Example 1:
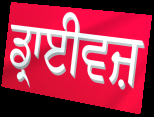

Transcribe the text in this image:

ਡ੍ਰਾਈਵਜ਼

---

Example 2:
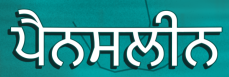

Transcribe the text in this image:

ਪੈਨਸਲੀਨ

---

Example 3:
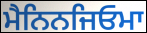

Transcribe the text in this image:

ਮੈਨਿਨਜਿਓਮਾ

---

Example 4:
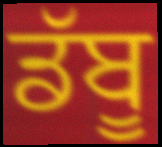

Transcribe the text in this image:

ਡੱਬੂ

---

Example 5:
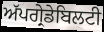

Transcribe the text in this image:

ਅੱਪਗ੍ਰੇਡੇਬਿਲਟੀ